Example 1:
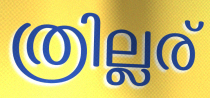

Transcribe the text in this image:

ത്രില്ലര്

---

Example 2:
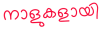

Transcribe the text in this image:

നാളുകളായി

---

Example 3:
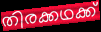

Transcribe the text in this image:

തിരക്കഥക്ക്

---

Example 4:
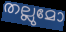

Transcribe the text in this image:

തല്ലുമോ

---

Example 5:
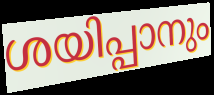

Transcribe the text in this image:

ശയിപ്പാനും